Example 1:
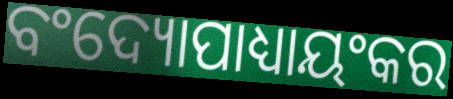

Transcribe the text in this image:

ବଂଦ୍ୟୋପାଧ୍ୟାୟଂକର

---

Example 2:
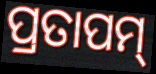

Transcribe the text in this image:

ପ୍ରତାପମ୍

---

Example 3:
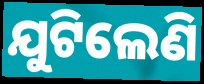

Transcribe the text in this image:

ଯୁଟିଲେଣି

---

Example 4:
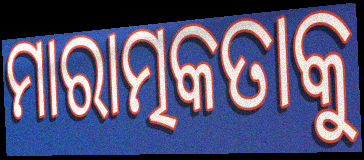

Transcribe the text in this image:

ମାରାତ୍ମକତାକୁ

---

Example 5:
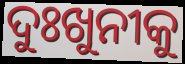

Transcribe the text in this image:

ଦୁଃଖୁନୀକୁ